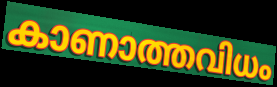
കാണാത്തവിധം